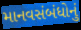
માનવસંબંધોનું